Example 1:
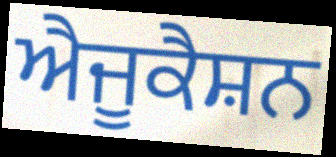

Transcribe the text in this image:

ਐਜੂਕੈਸ਼ਨ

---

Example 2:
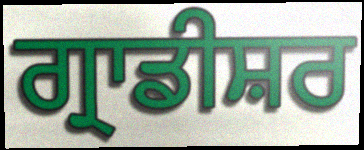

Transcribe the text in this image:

ਗ੍ਰਾਡੀਸ਼ਰ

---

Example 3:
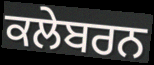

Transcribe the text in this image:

ਕਲੇਬਰਨ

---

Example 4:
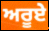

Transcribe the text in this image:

ਅਰੂਏ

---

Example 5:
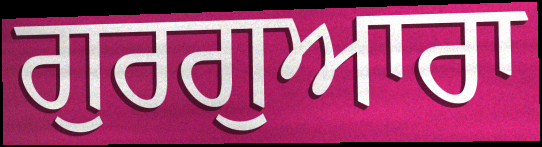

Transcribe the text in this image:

ਗੁਰਗੁਆਰਾ